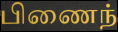
பிணைந்